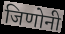
जिणोनी